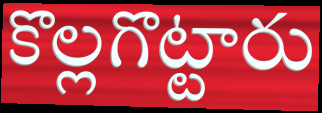
కొల్లగొట్టారు